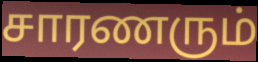
சாரணரும்